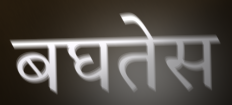
बघतेस